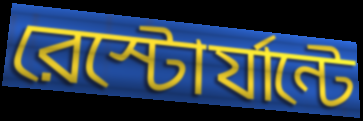
রেস্টোর্যান্টে